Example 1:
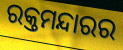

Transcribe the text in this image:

ରକ୍ତମନ୍ଦାରର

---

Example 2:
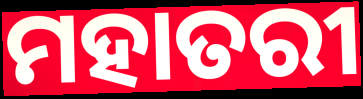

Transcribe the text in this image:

ମହାତରୀ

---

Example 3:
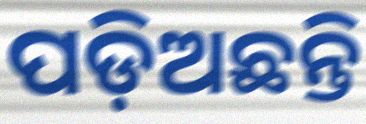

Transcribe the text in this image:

ପଡ଼ିଅଛନ୍ତି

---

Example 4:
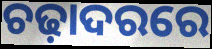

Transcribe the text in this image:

ଚଢ଼ାଦରରେ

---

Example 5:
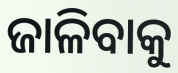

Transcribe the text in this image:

ଜାଳିବାକୁ